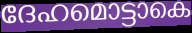
ദേഹമൊട്ടാകെ